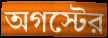
অগস্টের